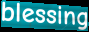
blessing